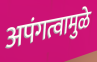
अपंगत्वामुळे